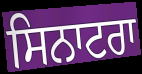
ਸਿਨਾਟਰਾ